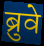
ब्रुवे